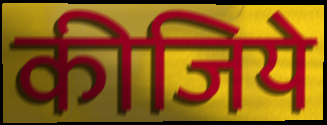
कीजिये